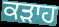
ਕੜਾਹ